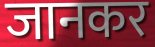
जानकर